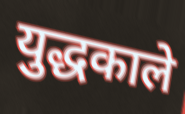
युद्धकाले